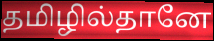
தமிழில்தானே